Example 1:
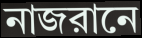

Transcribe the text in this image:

নাজরানে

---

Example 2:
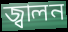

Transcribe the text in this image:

জ্বালন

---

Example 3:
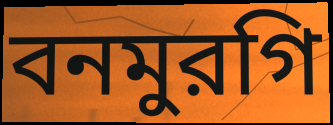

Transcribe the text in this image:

বনমুরগি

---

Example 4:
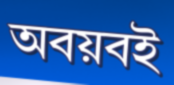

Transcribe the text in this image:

অবয়বই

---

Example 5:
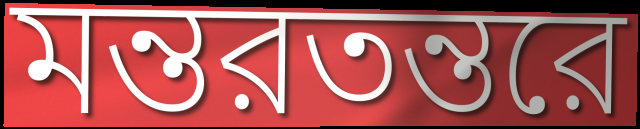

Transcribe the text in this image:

মন্তরতন্তরে